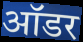
ऑडर